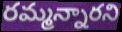
రమ్మన్నారని